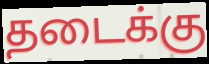
தடைக்கு